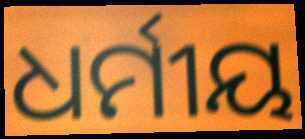
ଧର୍ମୀୟ